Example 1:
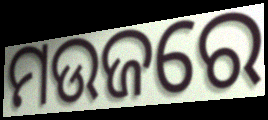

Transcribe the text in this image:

ମଉଜରେ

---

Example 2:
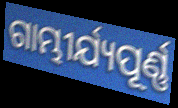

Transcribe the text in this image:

ଗାମ୍ଭୀର୍ଯ୍ୟପୂର୍ଣ୍ଣ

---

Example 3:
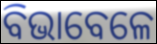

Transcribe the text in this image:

ବିଭାବେଳେ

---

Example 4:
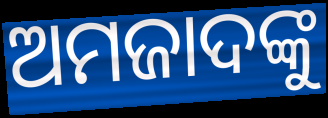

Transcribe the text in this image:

ଅମଜାଦଙ୍କୁ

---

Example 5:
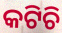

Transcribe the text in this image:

କଟିଚି